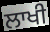
ਲਾਖੀ